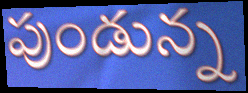
పుండున్న